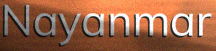
Nayanmar